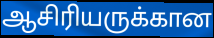
ஆசிரியருக்கான